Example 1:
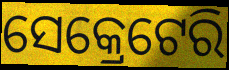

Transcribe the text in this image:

ସେକ୍ରେଟେରି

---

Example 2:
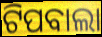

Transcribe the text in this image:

ଟିପବାଲା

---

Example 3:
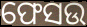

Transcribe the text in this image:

ଫେସଉ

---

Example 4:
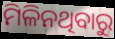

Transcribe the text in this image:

ମିଳିନଥିବାରୁ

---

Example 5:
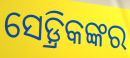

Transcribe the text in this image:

ସେଡ଼୍ରିକଙ୍କର